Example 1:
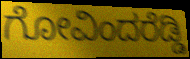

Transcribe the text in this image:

ಗೋವಿಂದರೆಡ್ಡಿ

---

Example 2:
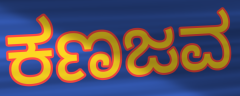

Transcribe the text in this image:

ಕಣಜವ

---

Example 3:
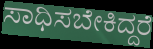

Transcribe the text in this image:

ಸಾಧಿಸಬೇಕಿದ್ದರೆ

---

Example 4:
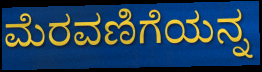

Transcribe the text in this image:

ಮೆರವಣಿಗೆಯನ್ನ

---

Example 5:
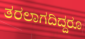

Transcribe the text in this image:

ತರಲಾಗದಿದ್ದರೂ